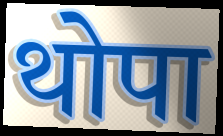
थोपा